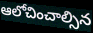
ఆలోచించాల్సిన